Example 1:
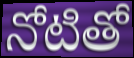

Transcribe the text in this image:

నోటితో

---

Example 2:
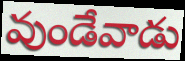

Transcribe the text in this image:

వుండేవాడు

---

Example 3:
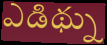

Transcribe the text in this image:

ఎడిథ్ను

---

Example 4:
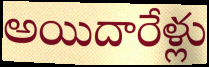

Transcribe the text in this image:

అయిదారేళ్లు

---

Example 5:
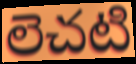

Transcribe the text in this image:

లెచటి